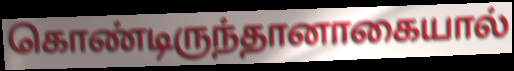
கொண்டிருந்தானாகையால்